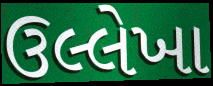
ઉલ્લેખા